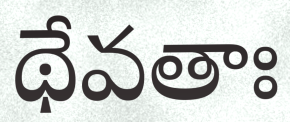
థేవతాః